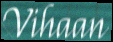
Vihaan